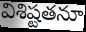
విశిష్టతనూ